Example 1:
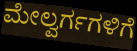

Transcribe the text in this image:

ಮೇಲ್ವರ್ಗಗಳಿಗೆ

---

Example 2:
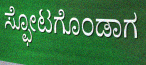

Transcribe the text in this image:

ಸ್ಫೋಟಗೊಂಡಾಗ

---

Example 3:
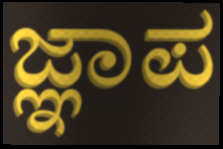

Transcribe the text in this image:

ಜ್ಞಾಪ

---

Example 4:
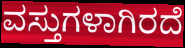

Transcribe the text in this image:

ವಸ್ತುಗಳಾಗಿರದೆ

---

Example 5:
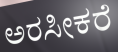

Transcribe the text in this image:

ಅರಸೀಕರೆ